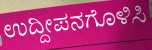
ಉದ್ದೀಪನಗೊಳಿಸಿ